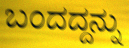
ಬಂದದ್ದನ್ನು